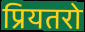
प्रियतरो